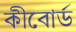
কীবোর্ড